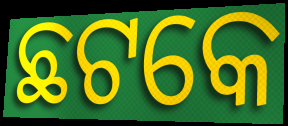
ଛଟକେ